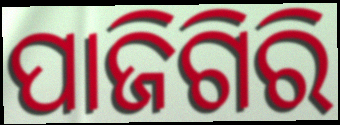
ପାଜିଗିରି